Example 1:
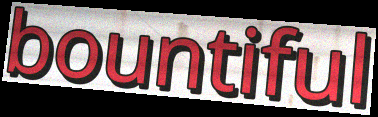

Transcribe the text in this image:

bountiful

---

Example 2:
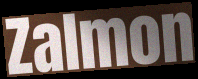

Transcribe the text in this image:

Zalmon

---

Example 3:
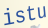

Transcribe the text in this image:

istu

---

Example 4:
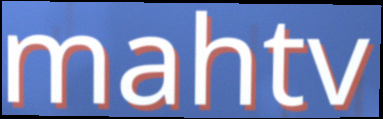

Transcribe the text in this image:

mahtv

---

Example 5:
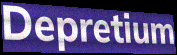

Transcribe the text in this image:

Depretium